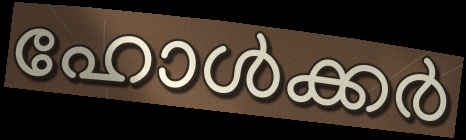
ഹോൾക്കർ